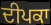
ਦੀਪਕਾ